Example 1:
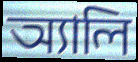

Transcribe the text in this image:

অ্যালি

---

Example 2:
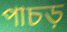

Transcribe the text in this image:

পাচড়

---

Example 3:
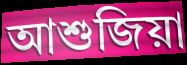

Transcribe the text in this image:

আশুজিয়া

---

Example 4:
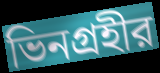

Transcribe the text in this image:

ভিনগ্রহীর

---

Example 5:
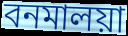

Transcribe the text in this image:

বনমালয়া